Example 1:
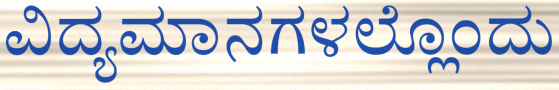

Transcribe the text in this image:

ವಿದ್ಯಮಾನಗಳಲ್ಲೊಂದು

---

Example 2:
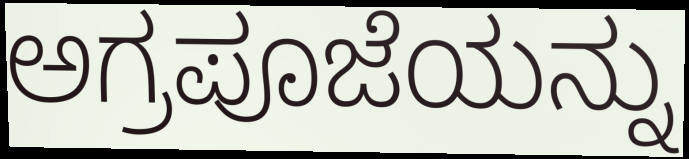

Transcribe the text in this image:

ಅಗ್ರಪೂಜೆಯನ್ನು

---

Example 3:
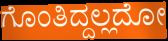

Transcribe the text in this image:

ಗೊಂತಿದ್ದಲ್ಲದೋ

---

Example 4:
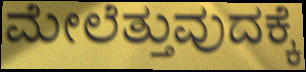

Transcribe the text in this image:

ಮೇಲೆತ್ತುವುದಕ್ಕೆ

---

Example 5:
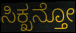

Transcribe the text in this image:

ಸಿಕ್ಖನ್ತೋ